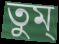
তুম্